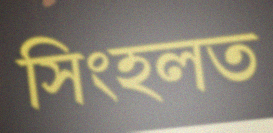
সিংহলত